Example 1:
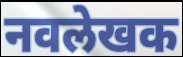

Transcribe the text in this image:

नवलेखक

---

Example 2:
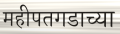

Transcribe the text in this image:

महीपतगडाच्या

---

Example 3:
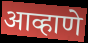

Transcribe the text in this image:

आव्हाणे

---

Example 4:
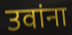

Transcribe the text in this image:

उवांना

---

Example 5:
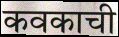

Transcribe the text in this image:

कवकाची